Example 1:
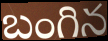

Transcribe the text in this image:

బంగిన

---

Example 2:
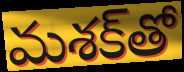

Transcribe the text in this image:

మశక్‌తో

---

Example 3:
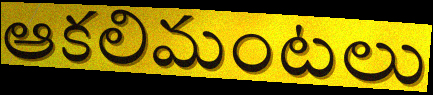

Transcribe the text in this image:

ఆకలిమంటలు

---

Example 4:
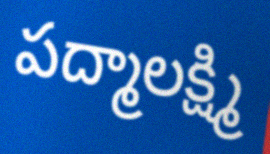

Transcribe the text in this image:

పద్మాలక్ష్మి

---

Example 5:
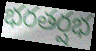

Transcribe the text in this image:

భరతర్షభ